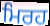
ਮਿਰਹ